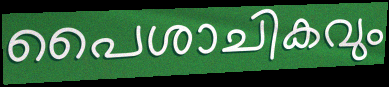
പൈശാചികവും